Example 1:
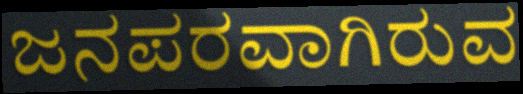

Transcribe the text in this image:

ಜನಪರವಾಗಿರುವ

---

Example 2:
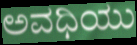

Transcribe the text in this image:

ಅವಧಿಯು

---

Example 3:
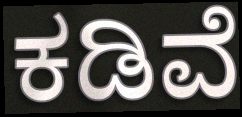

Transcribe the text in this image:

ಕಡಿವೆ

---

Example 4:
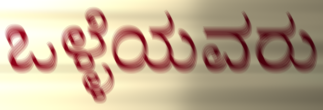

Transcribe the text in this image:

ಒಳ್ಳೆಯವರು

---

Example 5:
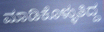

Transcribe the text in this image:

ಮಾಡಿಕೊಳ್ಳುತಿದ್ದ